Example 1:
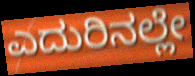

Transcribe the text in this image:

ಎದುರಿನಲ್ಲೇ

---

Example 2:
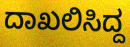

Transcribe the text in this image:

ದಾಖಲಿಸಿದ್ದ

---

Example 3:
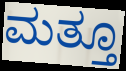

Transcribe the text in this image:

ಮತ್ತೂ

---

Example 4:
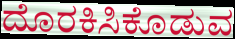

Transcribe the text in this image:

ದೊರಕಿಸಿಕೊಡುವ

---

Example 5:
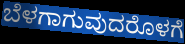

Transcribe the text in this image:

ಬೆಳಗಾಗುವುದರೊಳಗೆ